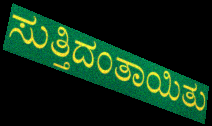
ಸುತ್ತಿದಂತಾಯಿತು